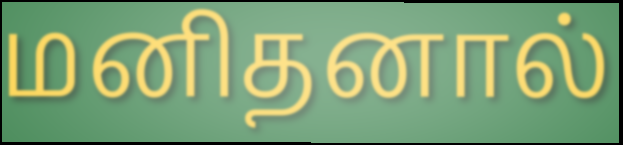
மனிதனால்